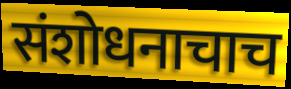
संशोधनाचाच